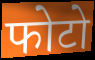
फोटो